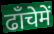
ढाँचेमें